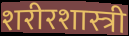
शरीरशास्त्री